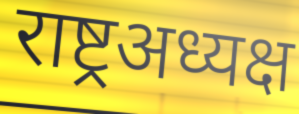
राष्ट्रअध्यक्ष